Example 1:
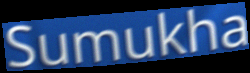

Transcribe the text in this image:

Sumukha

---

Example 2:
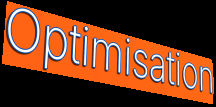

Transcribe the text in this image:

Optimisation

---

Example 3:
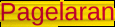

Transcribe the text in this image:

Pagelaran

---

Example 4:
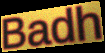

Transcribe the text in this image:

Badh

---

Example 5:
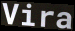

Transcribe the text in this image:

Vira